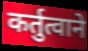
कर्तुत्वाने